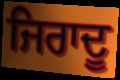
ਜਿਰਾਦੂ